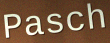
Pasch